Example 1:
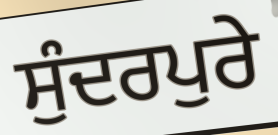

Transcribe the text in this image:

ਸੁੰਦਰਪੁਰੇ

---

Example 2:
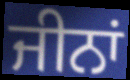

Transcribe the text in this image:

ਜੀਨਾਂ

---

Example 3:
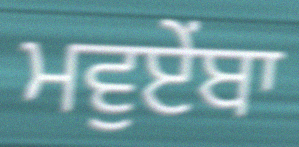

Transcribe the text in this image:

ਮਵੁਏਂਬਾ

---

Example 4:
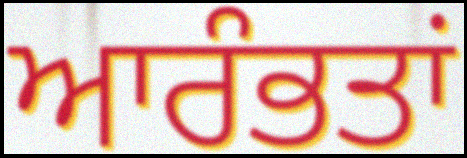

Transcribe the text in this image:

ਆਰੰਭਤਾਂ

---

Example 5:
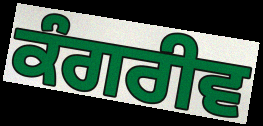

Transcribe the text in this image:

ਕੰਗਰੀਵ